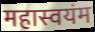
महास्वयंम